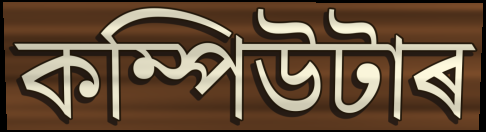
কম্পিউটাৰ